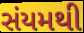
સંયમથી